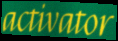
activator